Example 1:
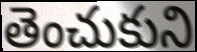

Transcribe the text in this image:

తెంచుకుని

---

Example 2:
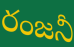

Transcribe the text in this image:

రంజనీ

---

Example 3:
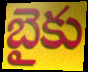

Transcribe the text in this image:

బైకు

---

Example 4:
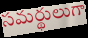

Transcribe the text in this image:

సమర్థులుగా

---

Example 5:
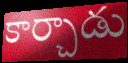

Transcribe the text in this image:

కార్చాడు